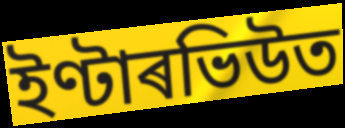
ইণ্টাৰভিউত